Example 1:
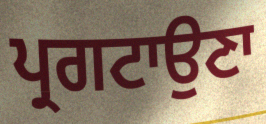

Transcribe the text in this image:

ਪ੍ਰਗਟਾਉਣਾ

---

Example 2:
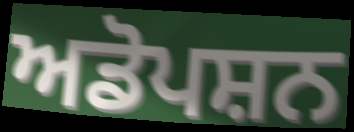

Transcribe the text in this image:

ਅਡੋਪਸ਼ਨ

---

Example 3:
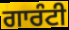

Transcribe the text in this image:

ਗਾਰੰਟੀ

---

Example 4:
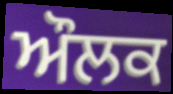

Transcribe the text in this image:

ਔਲਕ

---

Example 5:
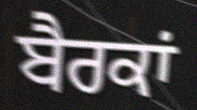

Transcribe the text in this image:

ਬੈਰਕਾਂ